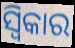
ସ୍ୱିକାର